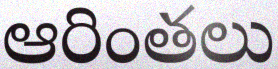
ఆరింతలు